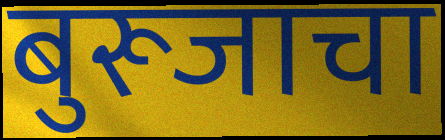
बुरूजाचा